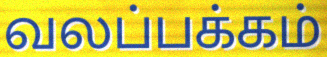
வலப்பக்கம்